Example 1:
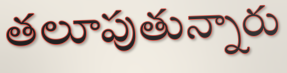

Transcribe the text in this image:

తలూపుతున్నారు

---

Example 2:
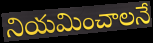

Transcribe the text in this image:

నియమించాలనే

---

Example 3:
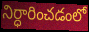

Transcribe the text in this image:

నిర్ధారించడంలో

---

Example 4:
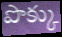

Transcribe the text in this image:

పొక్కు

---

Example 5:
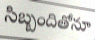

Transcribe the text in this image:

సిబ్బందితోనూ